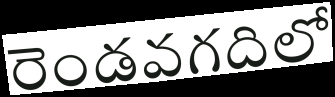
రెండవగదిలో